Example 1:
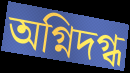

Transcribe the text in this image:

অগ্নিদগ্ধ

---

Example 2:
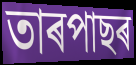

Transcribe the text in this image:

তাৰপাছৰ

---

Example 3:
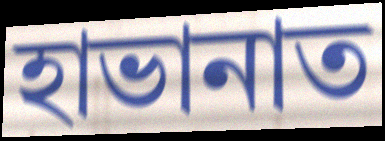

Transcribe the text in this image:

হাভানাত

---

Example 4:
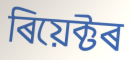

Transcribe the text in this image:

ৰিয়েক্টৰ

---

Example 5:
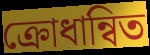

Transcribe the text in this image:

ক্ৰোধান্বিত